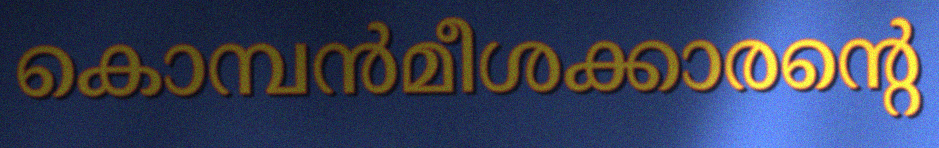
കൊമ്പൻമീശക്കാരന്റെ